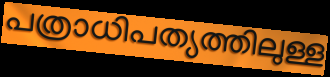
പത്രാധിപത്യത്തിലുള്ള